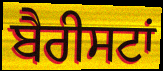
ਬੈਰੀਸਟਾਂ